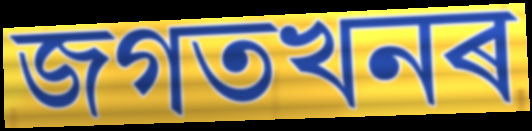
জগতখনৰ